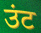
उंट